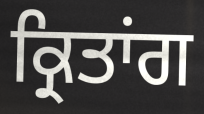
ਕ੍ਰਿਤਾਂਗ